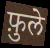
फ़ुले